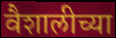
वैशालीच्या